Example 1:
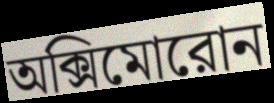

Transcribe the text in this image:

অক্সিমোরোন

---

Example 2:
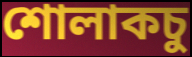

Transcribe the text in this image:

শোলাকচু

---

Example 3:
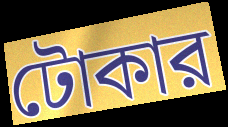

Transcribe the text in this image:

টোকার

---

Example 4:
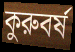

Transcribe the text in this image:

কুরুবর্ষ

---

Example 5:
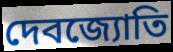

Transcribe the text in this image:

দেবজ্যোতি